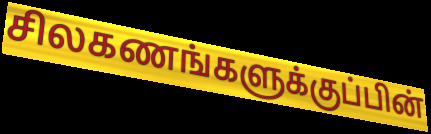
சிலகணங்களுக்குப்பின்